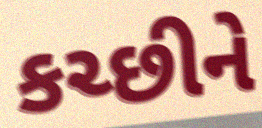
કચ્છીને